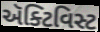
ઍક્ટિવિસ્ટ